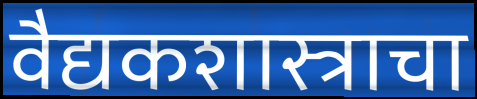
वैद्यकशास्त्राचा